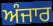
ਅੰਜਾਰ